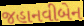
જહાનવીબેન